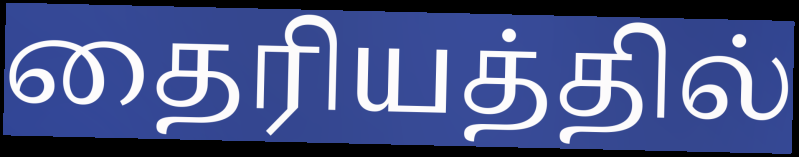
தைரியத்தில்